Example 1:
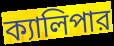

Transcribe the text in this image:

ক্যালিপার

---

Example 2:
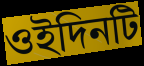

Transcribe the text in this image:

ওইদিনটি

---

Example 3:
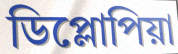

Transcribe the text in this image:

ডিপ্লোপিয়া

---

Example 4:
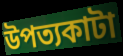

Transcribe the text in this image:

উপত্যকাটা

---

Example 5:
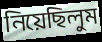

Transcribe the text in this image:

নিয়েছিলুম